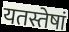
यतस्तेषां